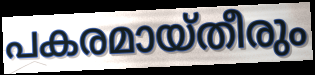
പകരമായ്തീരും